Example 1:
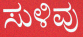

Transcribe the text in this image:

ಸುಳಿವು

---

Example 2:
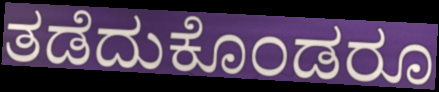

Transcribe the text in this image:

ತಡೆದುಕೊಂಡರೂ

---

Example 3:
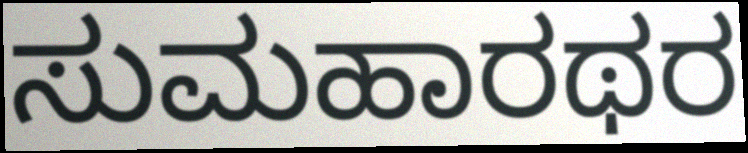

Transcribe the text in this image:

ಸುಮಹಾರಥರ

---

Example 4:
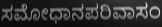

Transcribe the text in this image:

ಸಮೋಧಾನಪರಿವಾಸಂ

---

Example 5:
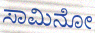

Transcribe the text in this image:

ಸಾಮಿನೋ